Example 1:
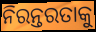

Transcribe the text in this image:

ନିରନ୍ତରତାକୁ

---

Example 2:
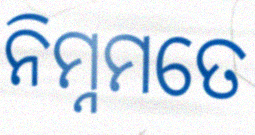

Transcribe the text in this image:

ନିମ୍ନମତେ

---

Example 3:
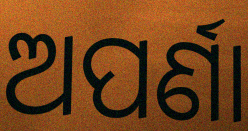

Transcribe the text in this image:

ଅପର୍ଣା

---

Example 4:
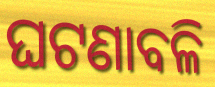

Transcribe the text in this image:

ଘଟଣାବଳି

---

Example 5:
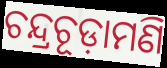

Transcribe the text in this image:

ଚନ୍ଦ୍ରଚୂଡ଼ାମଣି